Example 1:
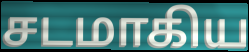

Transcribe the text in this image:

சடமாகிய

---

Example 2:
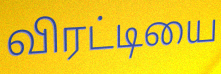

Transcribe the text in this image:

விரட்டியை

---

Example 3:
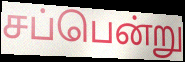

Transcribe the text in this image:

சப்பென்று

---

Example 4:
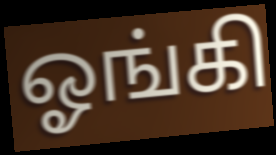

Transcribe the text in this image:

ஓங்கி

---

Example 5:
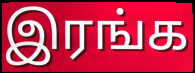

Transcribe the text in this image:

இரங்க